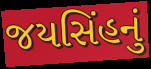
જયસિંહનું